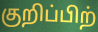
குறிப்பிற்